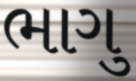
ભાગુ